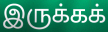
இருக்கக்